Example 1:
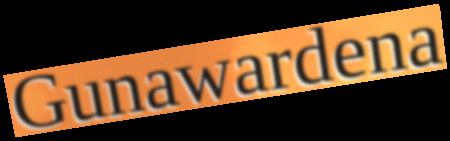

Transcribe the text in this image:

Gunawardena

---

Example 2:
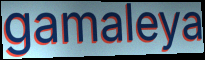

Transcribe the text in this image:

gamaleya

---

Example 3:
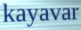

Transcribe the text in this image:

kayavar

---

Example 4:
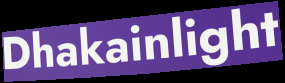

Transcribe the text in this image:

Dhakainlight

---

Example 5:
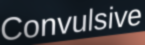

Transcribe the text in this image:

Convulsive